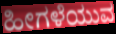
ಹೀಗಳೆಯುವ